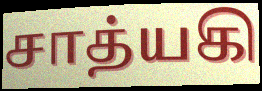
சாத்யகி